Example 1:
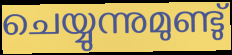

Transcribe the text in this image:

ചെയ്യുന്നുമുണ്ടു്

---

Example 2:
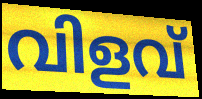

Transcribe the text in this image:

വിളവ്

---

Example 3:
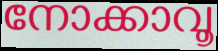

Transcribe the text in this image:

നോക്കാവൂ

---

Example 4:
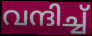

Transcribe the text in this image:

വന്ദിച്ച്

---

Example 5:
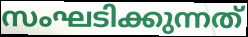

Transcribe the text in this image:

സംഘടിക്കുന്നത്